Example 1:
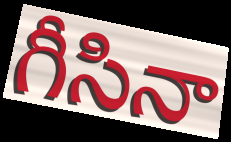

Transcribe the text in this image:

గీసినా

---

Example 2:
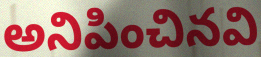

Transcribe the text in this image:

అనిపించినవి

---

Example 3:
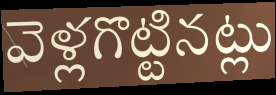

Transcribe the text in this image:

వెళ్లగొట్టినట్లు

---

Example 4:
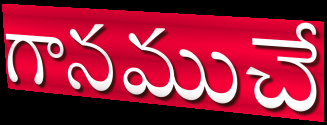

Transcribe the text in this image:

గానముచే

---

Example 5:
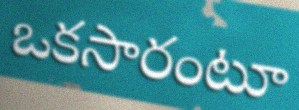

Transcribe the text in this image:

ఒకసారంటూ